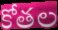
కోతల